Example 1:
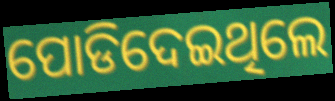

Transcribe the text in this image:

ପୋଡିଦେଇଥିଲେ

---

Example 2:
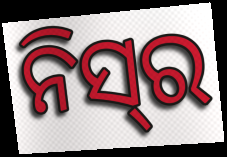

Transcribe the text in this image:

ନିସ୍‌ର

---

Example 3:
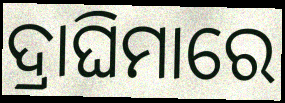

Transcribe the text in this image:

ଦ୍ରାଘିମାରେ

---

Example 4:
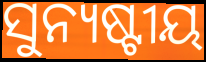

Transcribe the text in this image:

ସୁନ୍ୟଷ୍ଟୀୟ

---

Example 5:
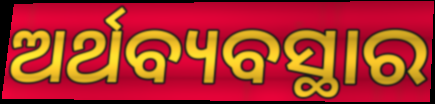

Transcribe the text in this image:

ଅର୍ଥବ୍ୟବସ୍ଥାର